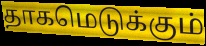
தாகமெடுக்கும்